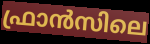
ഫ്രാൻസിലെ